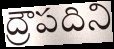
ద్రౌపదిని